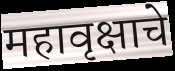
महावृक्षाचे